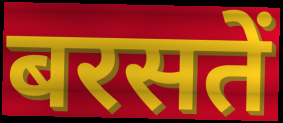
बरसतें